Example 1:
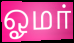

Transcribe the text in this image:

ஓமர்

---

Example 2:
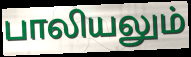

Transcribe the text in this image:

பாலியலும்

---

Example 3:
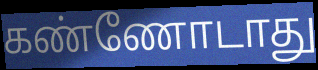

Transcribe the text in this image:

கண்ணோடாது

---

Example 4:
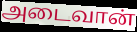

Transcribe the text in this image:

அடைவான்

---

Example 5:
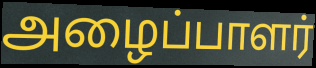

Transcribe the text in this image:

அழைப்பாளர்